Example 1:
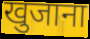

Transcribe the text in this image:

खुजाना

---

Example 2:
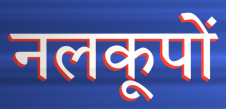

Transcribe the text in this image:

नलकूपों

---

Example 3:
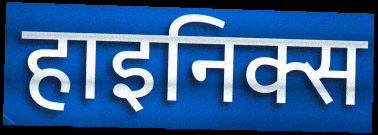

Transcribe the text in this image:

हाइनिक्स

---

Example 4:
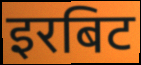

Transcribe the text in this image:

इरबिट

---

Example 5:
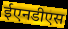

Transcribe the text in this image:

ईएनडीएस